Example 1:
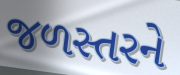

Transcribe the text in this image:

જળસ્તરને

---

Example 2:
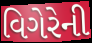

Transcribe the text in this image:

વિગેરેની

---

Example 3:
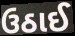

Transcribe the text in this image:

ઉઠાઈ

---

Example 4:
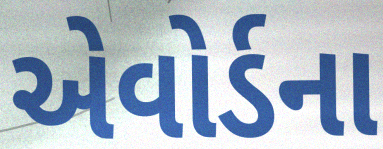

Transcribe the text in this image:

એવોર્ડના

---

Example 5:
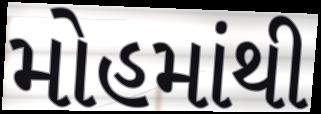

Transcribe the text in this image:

મોહમાંથી